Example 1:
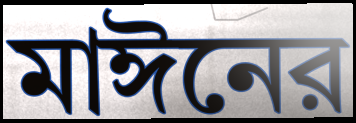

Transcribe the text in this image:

মাঈনের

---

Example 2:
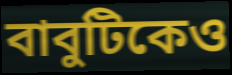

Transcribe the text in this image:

বাবুটিকেও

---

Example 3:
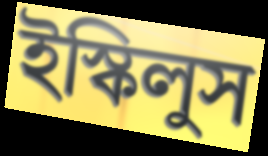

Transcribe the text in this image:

ইস্কিলুস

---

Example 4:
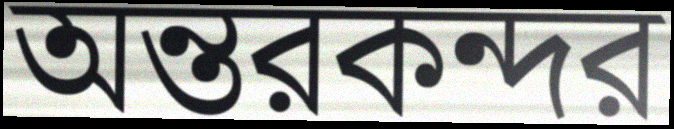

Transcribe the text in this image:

অন্তরকন্দর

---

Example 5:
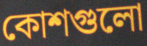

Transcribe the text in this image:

কোশগুলো